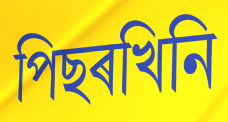
পিছৰখিনি